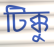
টিক্কু